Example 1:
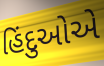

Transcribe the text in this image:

હિંદુઓએ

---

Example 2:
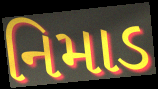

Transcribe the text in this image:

નિમાડ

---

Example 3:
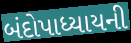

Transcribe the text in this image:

બંદોપાધ્યાયની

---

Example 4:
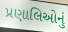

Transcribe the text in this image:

પ્રણાલિઓનું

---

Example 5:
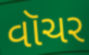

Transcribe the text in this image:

વૉચર